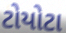
ટોયોટા